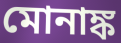
মোনাঙ্ক